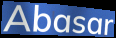
Abasar